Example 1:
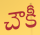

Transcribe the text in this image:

చౌకీ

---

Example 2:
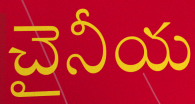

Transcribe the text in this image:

చైనీయ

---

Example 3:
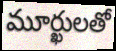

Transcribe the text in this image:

మూర్ఖులతో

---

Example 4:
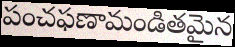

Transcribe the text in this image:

పంచఫణామండితమైన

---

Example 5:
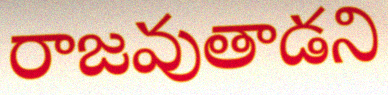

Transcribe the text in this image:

రాజవుతాడని